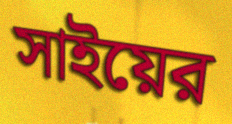
সাইয়ের